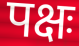
पक्षः